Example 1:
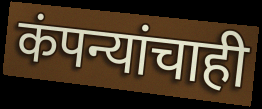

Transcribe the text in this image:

कंपन्यांचाही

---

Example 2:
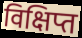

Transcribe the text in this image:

विक्षिप्त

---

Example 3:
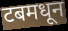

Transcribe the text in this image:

टबमधून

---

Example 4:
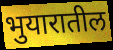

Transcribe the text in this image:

भुयारातील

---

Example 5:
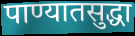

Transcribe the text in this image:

पाण्यातसुद्धा